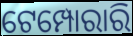
ଟେମ୍ପୋରାରି